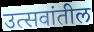
उत्सवांतील